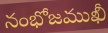
నంభోజముఖీ